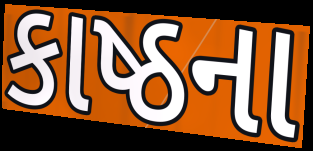
કાષ્ઠના